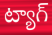
ట్యాగ్